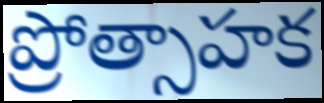
ప్రోత్సాహక